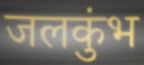
जलकुंभ